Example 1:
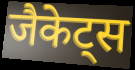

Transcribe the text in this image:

जैकेट्स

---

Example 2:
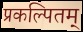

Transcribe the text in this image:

प्रकल्पितम्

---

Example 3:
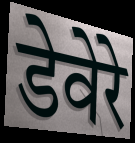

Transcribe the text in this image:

डेवेरे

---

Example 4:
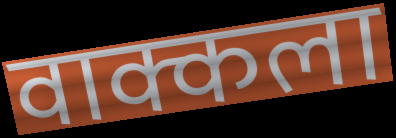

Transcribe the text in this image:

वाक्कला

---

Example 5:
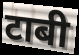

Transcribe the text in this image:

टाबी